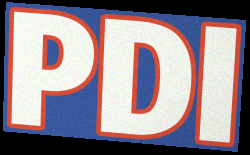
PDI